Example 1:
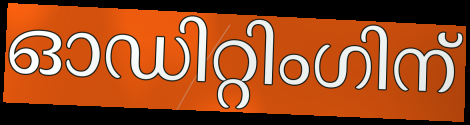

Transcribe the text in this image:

ഓഡിറ്റിംഗിന്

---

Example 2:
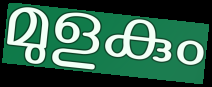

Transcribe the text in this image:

മുളകും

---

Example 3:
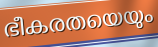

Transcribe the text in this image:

ഭീകരതയെയും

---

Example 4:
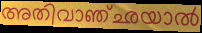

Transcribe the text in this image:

അതിവാഞ്ഛയാൽ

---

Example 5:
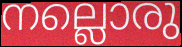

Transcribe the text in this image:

നല്ലൊരു